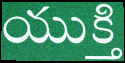
యుక్తి